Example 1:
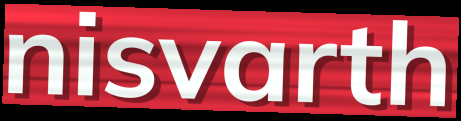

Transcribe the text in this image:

nisvarth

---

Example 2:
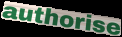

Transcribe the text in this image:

authorise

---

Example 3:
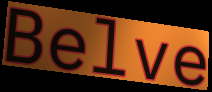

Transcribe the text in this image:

Belve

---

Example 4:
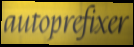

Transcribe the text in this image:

autoprefixer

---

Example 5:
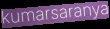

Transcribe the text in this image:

kumarsaranya